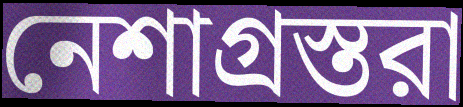
নেশাগ্রস্তরা